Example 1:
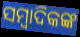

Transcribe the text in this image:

ସମ୍ୱାଦିକଙ୍କ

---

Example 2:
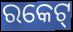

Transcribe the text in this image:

ରକେଟ୍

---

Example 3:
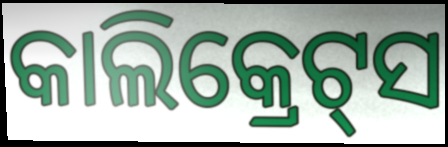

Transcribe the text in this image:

କାଲିକ୍ରେଟ୍‍ସ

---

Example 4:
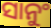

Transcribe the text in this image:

ସାନୁଂ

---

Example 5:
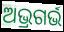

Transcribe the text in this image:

ଅଭ୍ରଗର୍ଭ